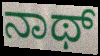
ನಾಥ್